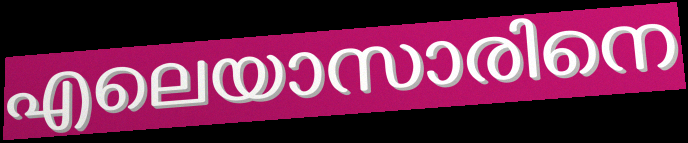
എലെയാസാരിനെ